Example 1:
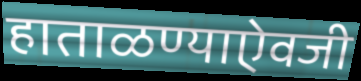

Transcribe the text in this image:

हाताळण्याऐवजी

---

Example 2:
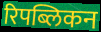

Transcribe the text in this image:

रिपब्लिकन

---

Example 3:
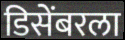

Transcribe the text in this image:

डिसेंबरला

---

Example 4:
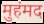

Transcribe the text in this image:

मुहंमद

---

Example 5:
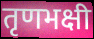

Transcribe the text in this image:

तृणभक्षी